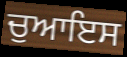
ਚੁਆਇਸ